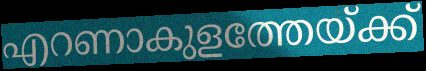
എറണാകുളത്തേയ്ക്ക്